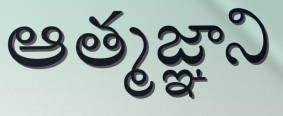
ఆత్మజ్ఞాని